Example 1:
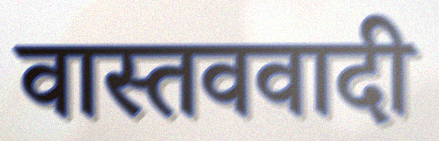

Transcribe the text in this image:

वास्तववादी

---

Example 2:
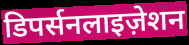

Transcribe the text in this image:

डिपर्सनलाइज़ेशन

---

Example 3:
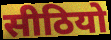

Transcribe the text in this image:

सीठियो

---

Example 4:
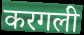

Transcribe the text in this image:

करगली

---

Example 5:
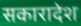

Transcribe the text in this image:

सकारादेश